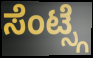
ಸೆಂಟ್ಸ್ಗೆ